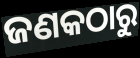
ଜଣକଠାରୁ